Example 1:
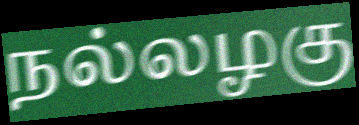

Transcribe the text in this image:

நல்லழகு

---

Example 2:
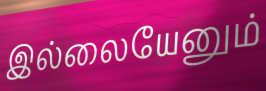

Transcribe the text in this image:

இல்லையேனும்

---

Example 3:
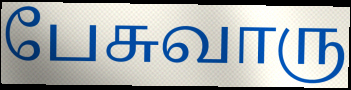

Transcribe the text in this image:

பேசுவாரு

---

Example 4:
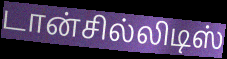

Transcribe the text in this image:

டான்சில்லிடிஸ்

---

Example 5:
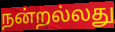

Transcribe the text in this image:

நன்றல்லது